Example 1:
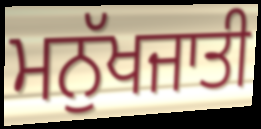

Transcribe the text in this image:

ਮਨੁੱਖਜਾਤੀ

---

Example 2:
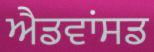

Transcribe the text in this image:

ਐਡਵਾਂਸਡ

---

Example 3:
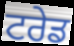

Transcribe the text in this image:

ਟਰੇਡ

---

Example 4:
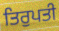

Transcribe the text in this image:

ਤਿਰੁਪਤੀ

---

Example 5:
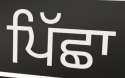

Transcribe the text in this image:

ਪਿੱਛਾ